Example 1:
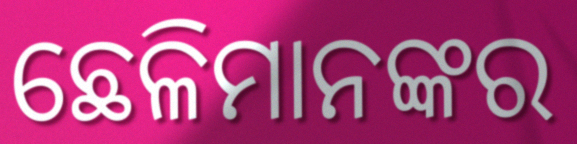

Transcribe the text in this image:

ଛେଳିମାନଙ୍କର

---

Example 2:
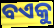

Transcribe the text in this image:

ବଏକୁ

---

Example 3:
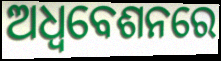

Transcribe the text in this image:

ଅଧ୍ଵବେଶନରେ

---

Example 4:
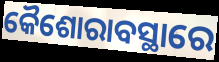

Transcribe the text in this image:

କୈଶୋରାବସ୍ଥାରେ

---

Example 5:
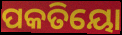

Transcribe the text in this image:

ପକତିୟୋ